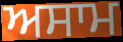
ਅਸਾਮ